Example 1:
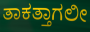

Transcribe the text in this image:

ತಾಕತ್ತಾಗಲೀ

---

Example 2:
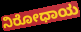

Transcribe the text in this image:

ನಿರೋಧಾಯ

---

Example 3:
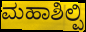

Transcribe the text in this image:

ಮಹಾಶಿಲ್ಪಿ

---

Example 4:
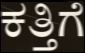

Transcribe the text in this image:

ಕತ್ತಿಗೆ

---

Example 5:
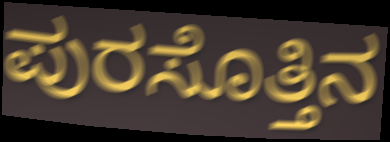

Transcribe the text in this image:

ಪುರಸೊತ್ತಿನ